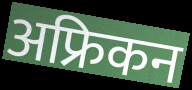
अफ्रिकन